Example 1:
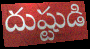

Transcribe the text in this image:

దుష్టుడి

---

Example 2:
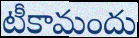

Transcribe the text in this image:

టీకామందు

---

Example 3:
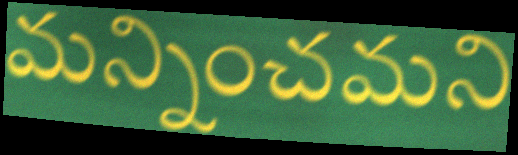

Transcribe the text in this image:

మన్నించమని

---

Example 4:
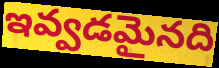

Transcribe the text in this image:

ఇవ్వడమైనది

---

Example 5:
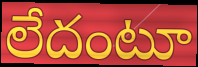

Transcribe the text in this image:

లేదంటూ